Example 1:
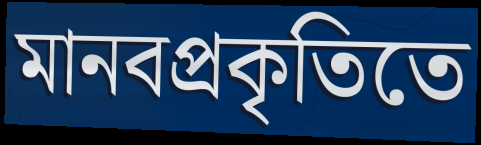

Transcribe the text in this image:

মানবপ্রকৃতিতে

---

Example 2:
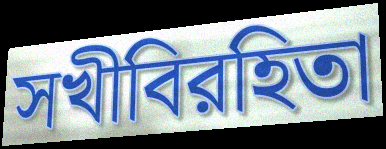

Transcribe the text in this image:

সখীবিরহিতা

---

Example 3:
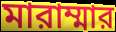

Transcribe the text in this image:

মারাম্মার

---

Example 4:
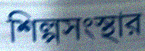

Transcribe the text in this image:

শিল্পসংস্থার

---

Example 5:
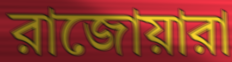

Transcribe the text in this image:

রাজোয়ারা